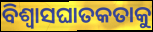
ବିଶ୍ୱାସଘାତକତାକୁ